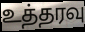
உத்தரவு